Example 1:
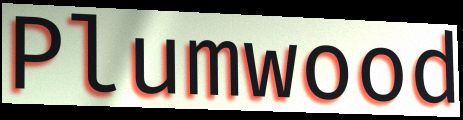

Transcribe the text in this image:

Plumwood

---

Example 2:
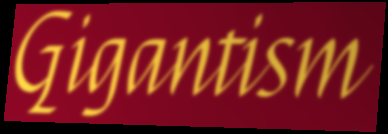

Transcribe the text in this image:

Gigantism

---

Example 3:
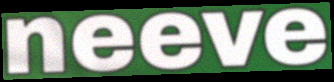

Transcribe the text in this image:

neeve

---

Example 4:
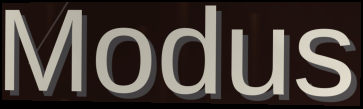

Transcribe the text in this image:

Modus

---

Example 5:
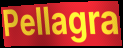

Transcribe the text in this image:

Pellagra